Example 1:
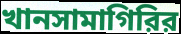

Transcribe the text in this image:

খানসামাগিরির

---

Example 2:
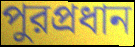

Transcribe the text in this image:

পুরপ্রধান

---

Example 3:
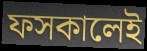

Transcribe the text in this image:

ফসকালেই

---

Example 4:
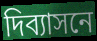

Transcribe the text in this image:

দিব্যাসনে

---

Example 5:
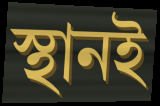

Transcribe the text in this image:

স্থানই